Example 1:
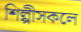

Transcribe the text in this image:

শিল্পীসকলে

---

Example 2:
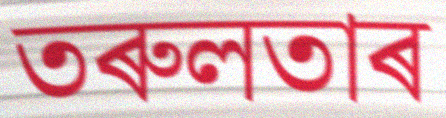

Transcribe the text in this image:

তৰুলতাৰ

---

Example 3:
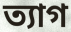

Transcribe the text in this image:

ত্যাগ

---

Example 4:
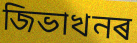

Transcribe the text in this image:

জিভাখনৰ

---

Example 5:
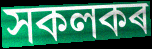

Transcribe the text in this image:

সকলকৰ